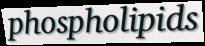
phospholipids